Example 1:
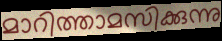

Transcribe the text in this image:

മാറിത്താമസിക്കുന്നു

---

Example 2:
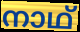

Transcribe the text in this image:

നാഥ്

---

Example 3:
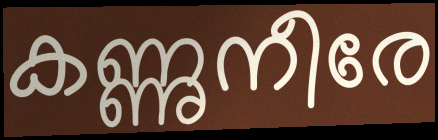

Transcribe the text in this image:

കണ്ണുനീരേ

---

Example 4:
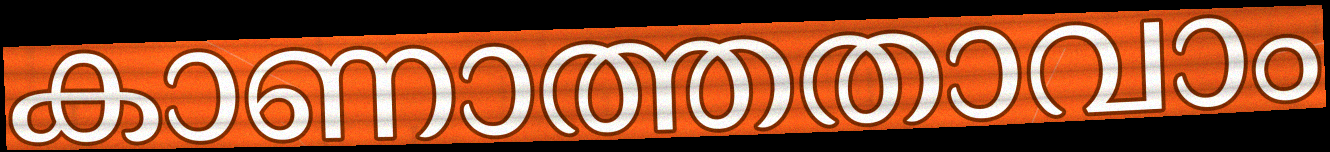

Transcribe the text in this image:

കാണാത്തതാവാം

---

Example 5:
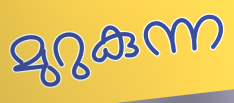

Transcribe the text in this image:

മുറുകുന്ന